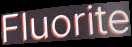
Fluorite